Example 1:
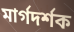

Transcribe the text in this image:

মার্গদর্শক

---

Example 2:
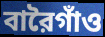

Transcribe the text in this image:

বারৈগাঁও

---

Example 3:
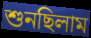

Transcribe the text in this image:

শুনছিলাম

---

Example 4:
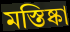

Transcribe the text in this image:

মস্তিষ্কা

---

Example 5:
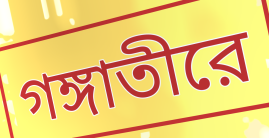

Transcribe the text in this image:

গঙ্গাতীরে